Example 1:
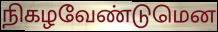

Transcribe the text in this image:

நிகழவேண்டுமென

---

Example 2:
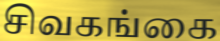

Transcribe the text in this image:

சிவகங்கை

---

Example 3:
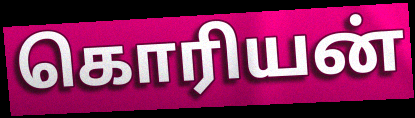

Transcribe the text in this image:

கொரியன்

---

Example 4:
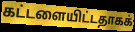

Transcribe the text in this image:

கட்டளையிட்டதாகக்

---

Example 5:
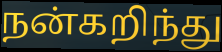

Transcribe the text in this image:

நன்கறிந்து